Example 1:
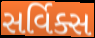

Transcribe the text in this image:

સર્વિક્સ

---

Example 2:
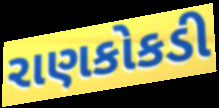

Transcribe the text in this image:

રાણકોકડી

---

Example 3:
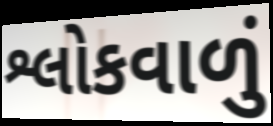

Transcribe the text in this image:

શ્લોકવાળું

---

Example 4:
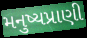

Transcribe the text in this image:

મનુષ્યપ્રાણી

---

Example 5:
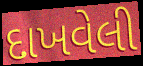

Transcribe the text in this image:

દાખવેલી